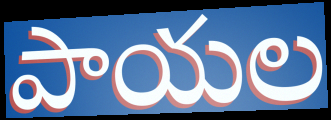
పాయల